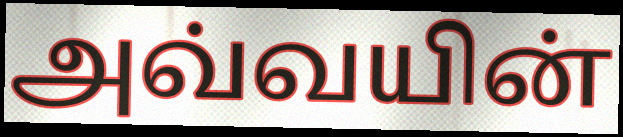
அவ்வயின்